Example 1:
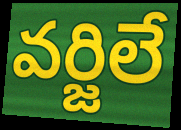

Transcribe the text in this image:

వర్జిలే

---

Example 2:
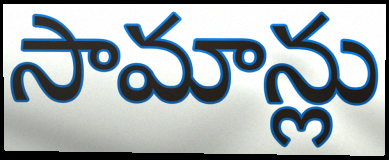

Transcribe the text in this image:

సామాన్లు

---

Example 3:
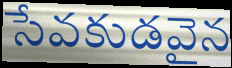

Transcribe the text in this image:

సేవకుడవైన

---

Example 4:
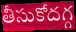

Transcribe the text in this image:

తీసుకోదగ్గ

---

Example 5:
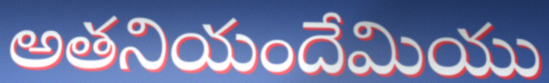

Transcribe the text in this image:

అతనియందేమియు